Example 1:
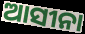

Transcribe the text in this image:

ଆସୀନା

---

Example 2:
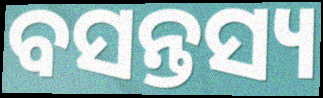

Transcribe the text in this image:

ବସନ୍ତସ୍ୟ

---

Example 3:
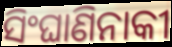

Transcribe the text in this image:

ସିଂଘାଣିନାକୀ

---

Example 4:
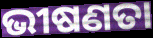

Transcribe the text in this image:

ଭୀଷଣତା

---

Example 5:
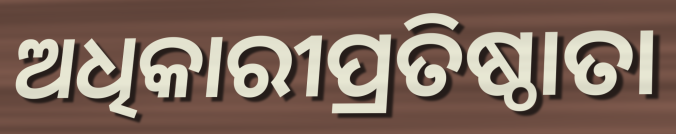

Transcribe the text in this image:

ଅଧିକାରୀପ୍ରତିଷ୍ଠାତା